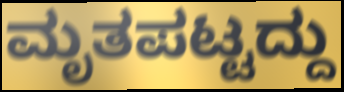
ಮೃತಪಟ್ಟದ್ದು